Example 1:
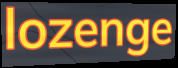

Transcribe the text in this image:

lozenge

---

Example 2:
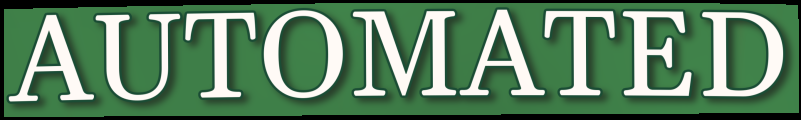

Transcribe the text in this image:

AUTOMATED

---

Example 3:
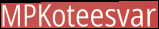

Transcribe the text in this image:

MPKoteesvar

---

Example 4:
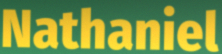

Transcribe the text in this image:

Nathaniel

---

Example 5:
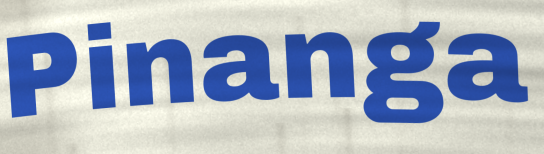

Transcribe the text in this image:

Pinanga